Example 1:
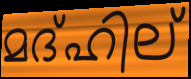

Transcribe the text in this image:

മദ്ഹില്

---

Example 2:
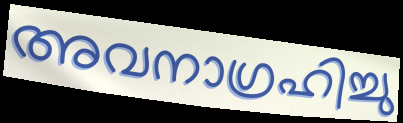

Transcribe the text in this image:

അവനാഗ്രഹിച്ചു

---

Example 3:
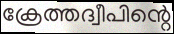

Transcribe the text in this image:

ക്രേത്തദ്വീപിന്റെ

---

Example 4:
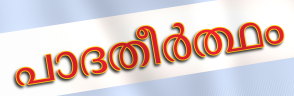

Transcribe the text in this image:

പാദതീർത്ഥം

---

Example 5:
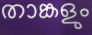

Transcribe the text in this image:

താങ്കളും